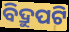
ବିଦ୍ରୁପଟି